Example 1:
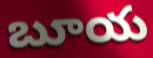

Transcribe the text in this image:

బూయ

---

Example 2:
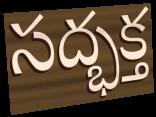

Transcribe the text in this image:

సద్భక్త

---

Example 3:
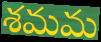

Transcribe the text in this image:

శమమ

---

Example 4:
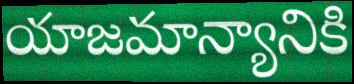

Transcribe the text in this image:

యాజమాన్యానికి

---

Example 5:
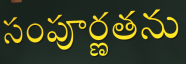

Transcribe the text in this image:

సంపూర్ణతను